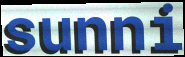
sunni